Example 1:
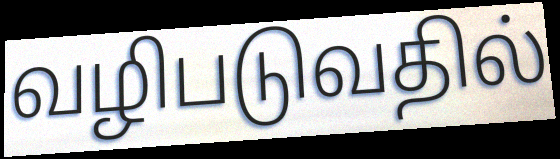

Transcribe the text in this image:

வழிபடுவதில்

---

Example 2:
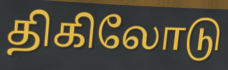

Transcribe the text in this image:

திகிலோடு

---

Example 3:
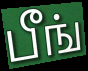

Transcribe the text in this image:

பீங்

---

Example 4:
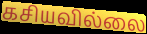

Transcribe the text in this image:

கசியவில்லை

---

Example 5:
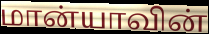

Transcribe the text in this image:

மான்யாவின்